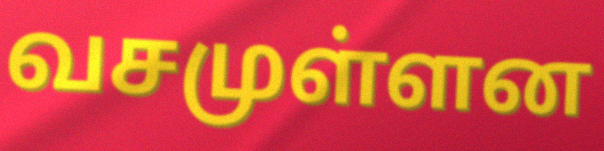
வசமுள்ளன